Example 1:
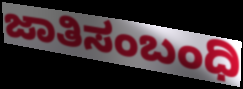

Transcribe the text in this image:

ಜಾತಿಸಂಬಂಧಿ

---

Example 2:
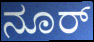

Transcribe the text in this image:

ನೂರ್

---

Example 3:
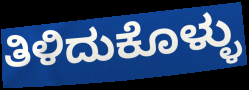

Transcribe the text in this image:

ತಿಳಿದುಕೊಳ್ಳು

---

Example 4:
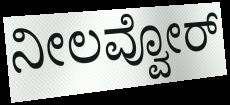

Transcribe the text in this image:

ನೀಲವ್ವೋರ್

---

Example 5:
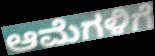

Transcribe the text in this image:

ಆಮೆಗಳಿಗೆ